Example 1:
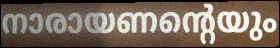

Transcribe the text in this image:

നാരായണന്റെയും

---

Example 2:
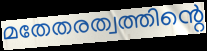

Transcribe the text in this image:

മതേതരത്വത്തിന്റെ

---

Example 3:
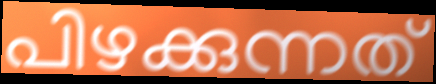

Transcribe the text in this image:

പിഴക്കുന്നത്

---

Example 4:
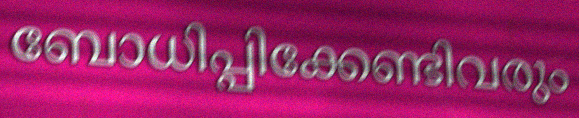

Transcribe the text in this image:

ബോധിപ്പിക്കേണ്ടിവരും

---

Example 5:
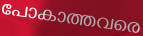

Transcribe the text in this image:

പോകാത്തവരെ